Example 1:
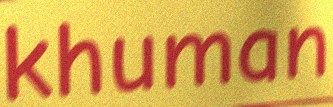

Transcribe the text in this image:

khuman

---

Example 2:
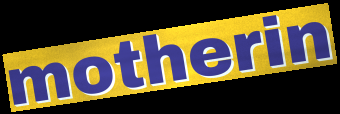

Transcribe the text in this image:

motherin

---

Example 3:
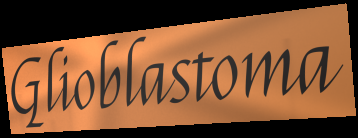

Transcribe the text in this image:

Glioblastoma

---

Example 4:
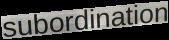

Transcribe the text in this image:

subordination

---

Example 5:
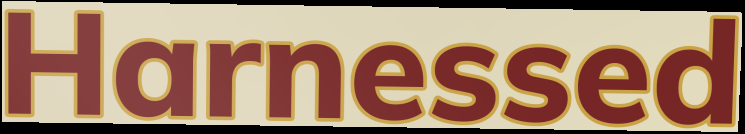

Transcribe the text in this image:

Harnessed